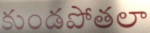
కుండపోతలా